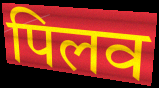
पिलव